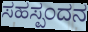
ಸಹಸ್ಪಂದನ